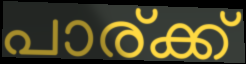
പാര്ക്ക്